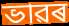
ভাৱৰ